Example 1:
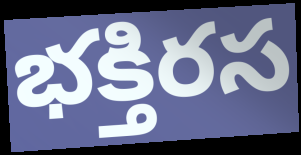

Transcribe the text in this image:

భక్తిరస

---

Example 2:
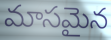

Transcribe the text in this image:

మాసమైన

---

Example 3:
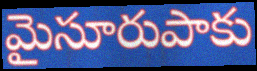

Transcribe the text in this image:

మైసూరుపాకు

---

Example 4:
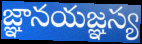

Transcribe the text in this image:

జ్ఞానయజ్ఞస్య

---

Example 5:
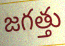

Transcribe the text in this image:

జగత్తు